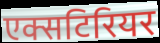
एक्सटिरियर